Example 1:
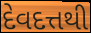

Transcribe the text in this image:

દેવદત્તથી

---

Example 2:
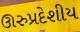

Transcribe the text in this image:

ઊરુપ્રદેશીય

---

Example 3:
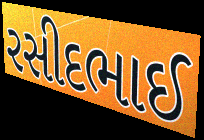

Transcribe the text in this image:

રસીદભાઈ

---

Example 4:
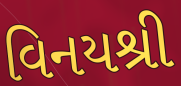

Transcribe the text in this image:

વિનયશ્રી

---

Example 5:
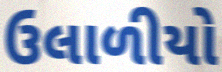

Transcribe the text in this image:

ઉલાળીયો